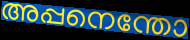
അപ്പനെന്തോ